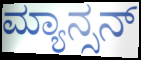
ಮ್ಯಾನ್ಸನ್